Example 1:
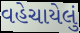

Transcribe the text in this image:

વહેચાયેલું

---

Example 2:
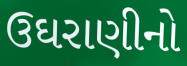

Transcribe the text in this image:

ઉઘરાણીનો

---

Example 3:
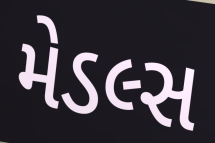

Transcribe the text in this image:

મેડલ્સ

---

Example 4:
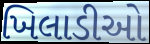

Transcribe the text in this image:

ખિલાડીઓ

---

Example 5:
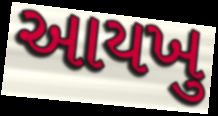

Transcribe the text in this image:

આયખુ